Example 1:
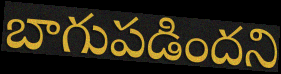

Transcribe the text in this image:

బాగుపడిందని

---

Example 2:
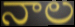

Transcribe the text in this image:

నాల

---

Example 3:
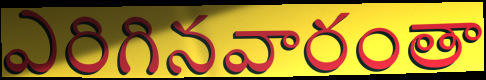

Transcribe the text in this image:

ఎరిగినవారంతా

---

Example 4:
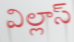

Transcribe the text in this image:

విల్లాస్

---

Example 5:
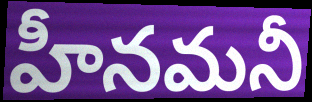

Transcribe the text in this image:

హీనమనీ